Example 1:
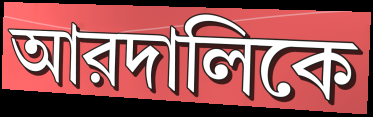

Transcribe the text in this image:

আরদালিকে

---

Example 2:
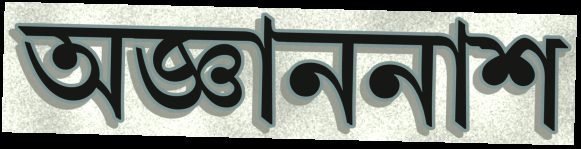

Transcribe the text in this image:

অজ্ঞাননাশ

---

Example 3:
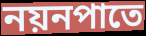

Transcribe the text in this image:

নয়নপাতে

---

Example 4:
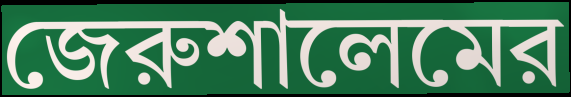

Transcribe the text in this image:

জেরুশালেমের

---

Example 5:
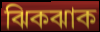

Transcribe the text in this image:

ঝিকঝাক